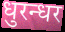
धुरन्धर